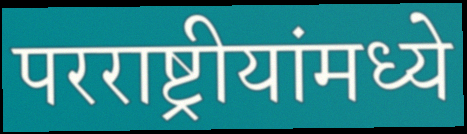
परराष्ट्रीयांमध्ये